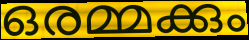
ഒരമ്മക്കും